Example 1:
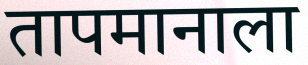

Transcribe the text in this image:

तापमानाला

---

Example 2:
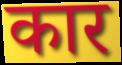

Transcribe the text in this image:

कार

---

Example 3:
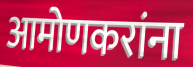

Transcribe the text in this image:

आमोणकरांना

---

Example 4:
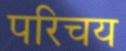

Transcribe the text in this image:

परिचय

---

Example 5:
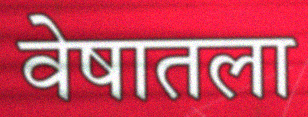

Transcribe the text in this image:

वेषातला